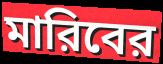
মারিবের